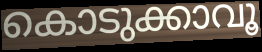
കൊടുക്കാവൂ